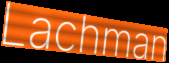
Lachman